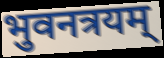
भुवनत्रयम्